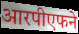
आरपीएफने